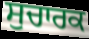
ਸੁਚਾਰਕ